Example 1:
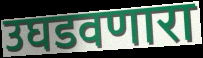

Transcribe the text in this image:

उघडवणारा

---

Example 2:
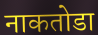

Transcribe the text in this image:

नाकतोडा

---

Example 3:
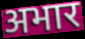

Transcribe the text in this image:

अभार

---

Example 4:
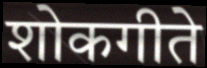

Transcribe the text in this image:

शोकगीते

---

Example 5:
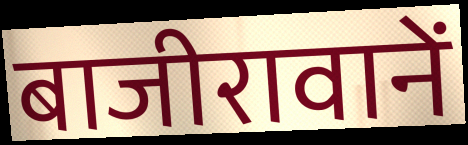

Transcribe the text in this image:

बाजीरावानें